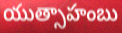
యుత్సాహంబు